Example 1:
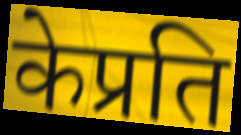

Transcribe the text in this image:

केप्रति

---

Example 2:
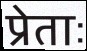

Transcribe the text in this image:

प्रेताः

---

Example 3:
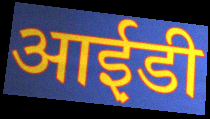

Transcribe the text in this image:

आई़डी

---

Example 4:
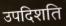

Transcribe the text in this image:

उपदिशति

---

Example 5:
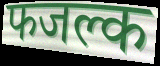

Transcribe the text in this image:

फजल्क